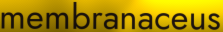
membranaceus